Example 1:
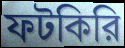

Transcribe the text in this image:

ফটকিরি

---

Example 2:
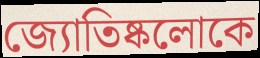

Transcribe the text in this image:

জ্যোতিষ্কলোকে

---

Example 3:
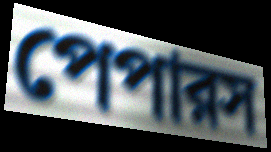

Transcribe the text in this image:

পেপারস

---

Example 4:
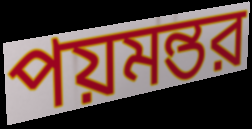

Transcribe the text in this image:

পয়মন্তর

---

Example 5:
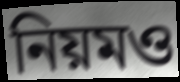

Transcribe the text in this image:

নিয়মও